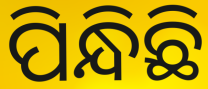
ପିନ୍ଧିଛି